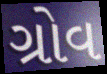
ગ્રોવ